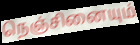
நெஞ்சினையும்